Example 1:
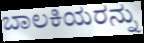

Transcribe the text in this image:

ಬಾಲಕಿಯರನ್ನು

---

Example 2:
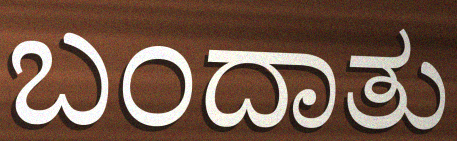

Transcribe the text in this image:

ಬಂದಾತು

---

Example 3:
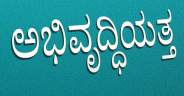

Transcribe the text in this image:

ಅಭಿವೃದ್ಧಿಯತ್ತ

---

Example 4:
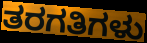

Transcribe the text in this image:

ತರಗತಿಗಳು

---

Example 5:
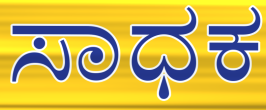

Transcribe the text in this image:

ಸಾಧಕ